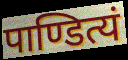
पाण्डित्यं